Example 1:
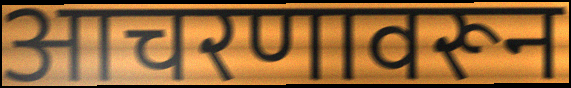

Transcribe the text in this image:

आचरणावरून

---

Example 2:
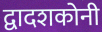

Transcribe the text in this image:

द्वादशकोनी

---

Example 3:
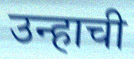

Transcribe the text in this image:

उन्हाची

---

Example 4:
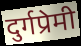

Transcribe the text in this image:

दुर्गप्रेमी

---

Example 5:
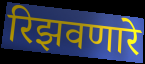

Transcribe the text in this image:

रिझवणारे